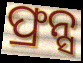
ଫ୍ରନ୍ସ